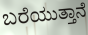
ಬರೆಯುತ್ತಾನೆ